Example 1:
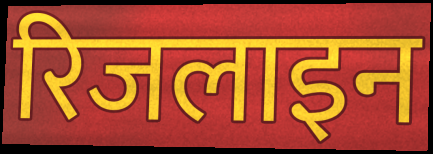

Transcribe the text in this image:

रिजलाइन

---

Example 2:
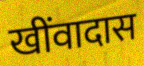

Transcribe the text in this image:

खींवादास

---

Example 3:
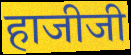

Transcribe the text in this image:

हाजीजी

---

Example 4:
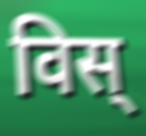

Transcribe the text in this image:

विस्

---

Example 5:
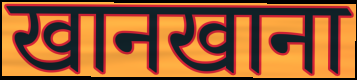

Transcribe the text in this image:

खानखाना